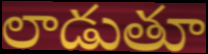
లాడుతూ